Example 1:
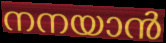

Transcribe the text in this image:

നനയാൻ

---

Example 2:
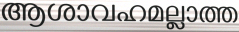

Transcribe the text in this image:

ആശാവഹമല്ലാത്ത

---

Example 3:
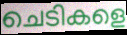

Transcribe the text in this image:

ചെടികളെ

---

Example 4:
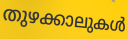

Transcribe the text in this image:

തുഴക്കാലുകൾ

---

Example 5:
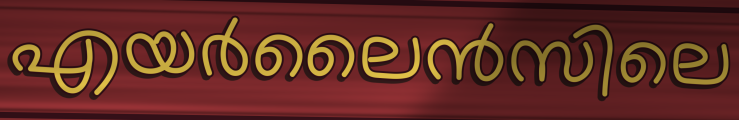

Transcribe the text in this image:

എയർലൈൻസിലെ